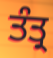
ਤੰਤ੍ਰ